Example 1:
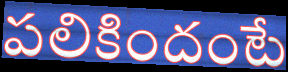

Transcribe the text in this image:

పలికిందంటే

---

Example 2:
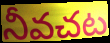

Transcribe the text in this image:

నీవచట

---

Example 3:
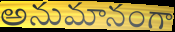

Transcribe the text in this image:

అనుమానంగా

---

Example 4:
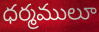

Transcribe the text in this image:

ధర్మములూ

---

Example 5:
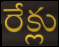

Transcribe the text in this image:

రేక్లు